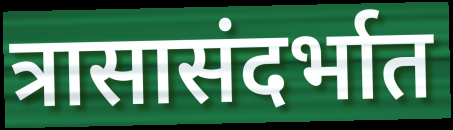
त्रासासंदर्भात